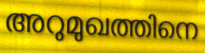
അറുമുഖത്തിനെ